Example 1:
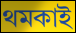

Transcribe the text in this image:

থমকাই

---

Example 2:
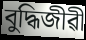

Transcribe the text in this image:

বুদ্ধিজীৱী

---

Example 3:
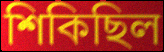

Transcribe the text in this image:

শিকিছিল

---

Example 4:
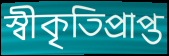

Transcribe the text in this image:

স্বীকৃতিপ্ৰাপ্ত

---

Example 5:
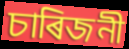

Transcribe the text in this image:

চাৰিজনী